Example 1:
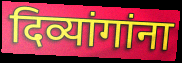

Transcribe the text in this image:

दिव्यांगांना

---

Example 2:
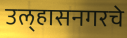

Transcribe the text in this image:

उल्हासनगरचे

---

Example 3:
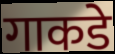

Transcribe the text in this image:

गाकडे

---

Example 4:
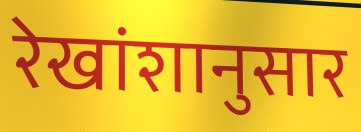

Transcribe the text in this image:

रेखांशानुसार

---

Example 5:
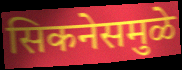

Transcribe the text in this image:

सिकनेसमुळे